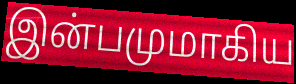
இன்பமுமாகிய